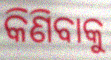
କିଣିବାକୁ